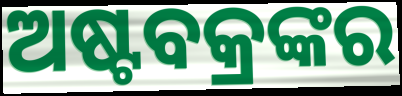
ଅଷ୍ଟବକ୍ରଙ୍କର